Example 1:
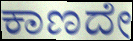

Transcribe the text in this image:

ಕಾಣದೇ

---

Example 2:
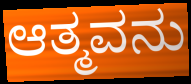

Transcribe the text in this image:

ಆತ್ಮವನು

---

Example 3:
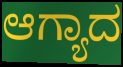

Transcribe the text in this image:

ಆಗ್ಯಾದ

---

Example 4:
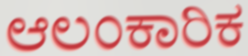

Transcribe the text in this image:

ಆಲಂಕಾರಿಕ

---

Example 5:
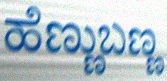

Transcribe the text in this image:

ಹೆಣ್ಣುಬಣ್ಣ